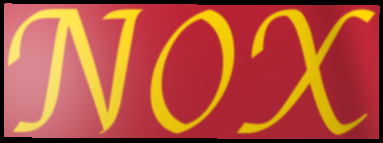
NOX